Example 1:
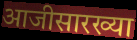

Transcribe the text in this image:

आजीसारख्या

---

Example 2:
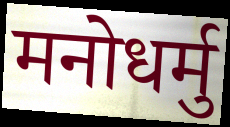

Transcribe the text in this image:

मनोधर्मु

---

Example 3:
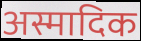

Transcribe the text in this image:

अस्मादिक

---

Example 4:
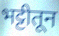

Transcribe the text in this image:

भट्टीतून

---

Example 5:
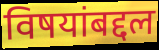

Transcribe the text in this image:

विषयांबद्दल